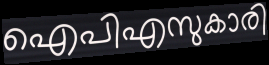
ഐപിഎസുകാരി